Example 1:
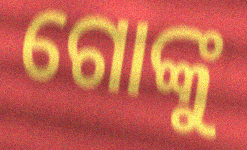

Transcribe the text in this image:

ଗୋଙ୍କୁ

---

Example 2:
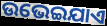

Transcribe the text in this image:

ଉଭେଇଯାଏ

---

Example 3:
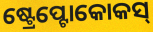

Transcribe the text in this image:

ଷ୍ଟ୍ରେପ୍ଟୋକୋକସ୍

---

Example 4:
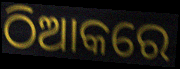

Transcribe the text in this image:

ଠିଆକରେ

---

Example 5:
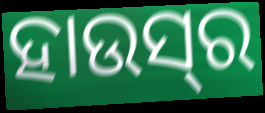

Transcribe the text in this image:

ହାଉସ୍‌ର